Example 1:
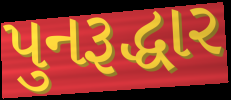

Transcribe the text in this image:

પુનરૂદ્ધાર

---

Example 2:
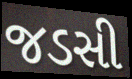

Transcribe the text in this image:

જડસી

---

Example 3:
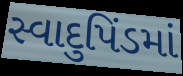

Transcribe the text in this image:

સ્વાદુપિંડમાં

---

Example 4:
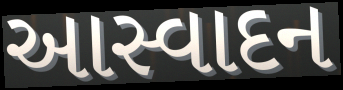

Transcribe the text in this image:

આસ્વાદન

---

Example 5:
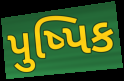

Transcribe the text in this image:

પુષ્પિક